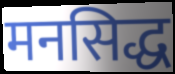
मनसिद्ध